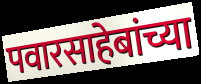
पवारसाहेबांच्या